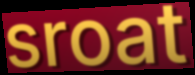
sroat